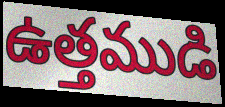
ఉత్తముడి